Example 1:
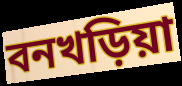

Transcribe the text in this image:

বনখড়িয়া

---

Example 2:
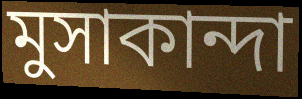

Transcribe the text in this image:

মুসাকান্দা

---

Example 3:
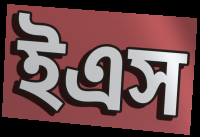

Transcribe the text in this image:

ইএস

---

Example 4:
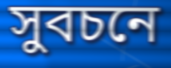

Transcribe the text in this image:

সুবচনে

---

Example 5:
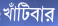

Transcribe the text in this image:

খাঁটিবার